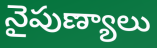
నైపుణ్యాలు